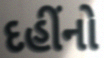
દહીંનો